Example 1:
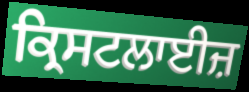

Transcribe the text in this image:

ਕ੍ਰਿਸਟਲਾਈਜ਼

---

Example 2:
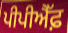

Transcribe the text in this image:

ਪੀਪੀਐੱਫ਼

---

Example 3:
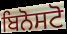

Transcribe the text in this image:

ਬਿਨੋਸਟੋ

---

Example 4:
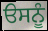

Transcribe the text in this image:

ੳਸਨੂੰ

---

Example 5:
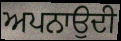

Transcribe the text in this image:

ਅਪਨਾਉਦੀ